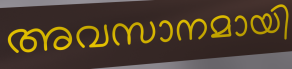
അവസാനമായി